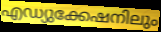
എഡ്യുക്കേഷനിലും